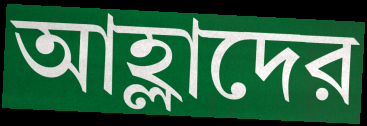
আহ্লাদের